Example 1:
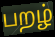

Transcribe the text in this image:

பறழ்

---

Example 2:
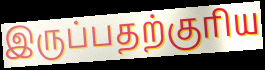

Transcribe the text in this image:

இருப்பதற்குரிய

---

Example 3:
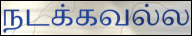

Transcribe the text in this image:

நடக்கவல்ல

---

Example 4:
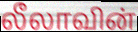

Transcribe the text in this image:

லீலாவின்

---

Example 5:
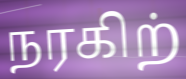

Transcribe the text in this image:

நரகிற்